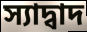
স্যাদ্বাদ